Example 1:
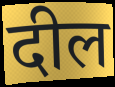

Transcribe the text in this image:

दील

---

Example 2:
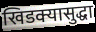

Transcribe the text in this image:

खिडक्यासुद्धा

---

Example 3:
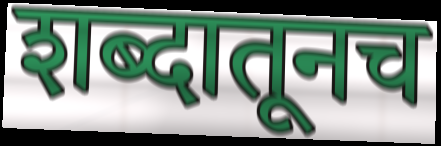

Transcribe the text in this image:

शब्दातूनच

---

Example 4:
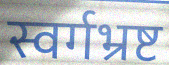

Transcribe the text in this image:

स्वर्गभ्रष्ट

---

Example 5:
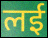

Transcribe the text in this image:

लई